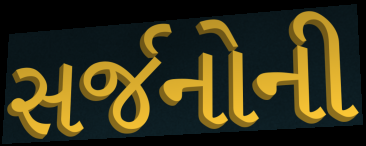
સર્જનોની